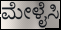
ಮೇಳೈಸಿ